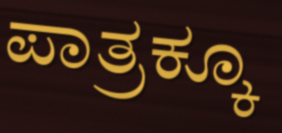
ಪಾತ್ರಕ್ಕೂ